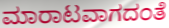
ಮಾರಾಟವಾಗದಂತೆ